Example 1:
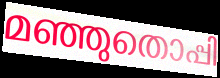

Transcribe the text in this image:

മഞ്ഞുതൊപ്പി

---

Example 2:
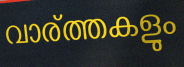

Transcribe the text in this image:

വാര്ത്തകളും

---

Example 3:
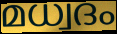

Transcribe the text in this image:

മധ്വദം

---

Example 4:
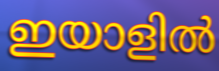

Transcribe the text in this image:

ഇയാളിൽ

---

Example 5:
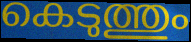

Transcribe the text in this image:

കെടുത്തും